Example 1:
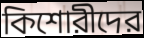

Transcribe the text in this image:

কিশোরীদের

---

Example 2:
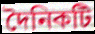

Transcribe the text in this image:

দৈনিকটি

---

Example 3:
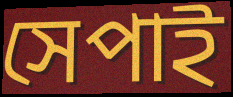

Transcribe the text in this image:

সেপাই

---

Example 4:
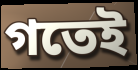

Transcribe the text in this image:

গতেই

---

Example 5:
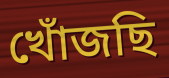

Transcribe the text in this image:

খোঁজছি